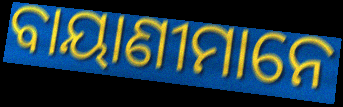
ବାୟାଣୀମାନେ